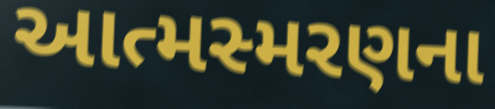
આત્મસ્મરણના